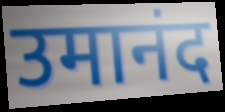
उमानंद